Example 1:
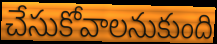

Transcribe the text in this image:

చేసుకోవాలనుకుంది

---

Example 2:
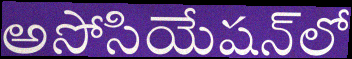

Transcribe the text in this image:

అసోసియేషన్‌లో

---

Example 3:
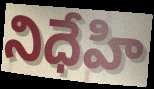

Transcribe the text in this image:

నిధేహి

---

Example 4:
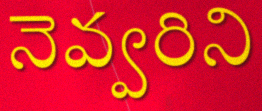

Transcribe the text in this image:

నెవ్వరిని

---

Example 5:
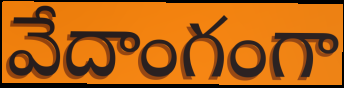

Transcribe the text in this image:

వేదాంగంగా